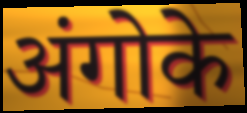
अंगोके